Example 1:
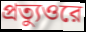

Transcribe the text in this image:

প্রত্যুওরে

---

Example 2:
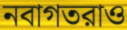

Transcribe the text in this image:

নবাগতরাও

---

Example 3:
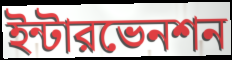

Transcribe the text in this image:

ইন্টারভেনশন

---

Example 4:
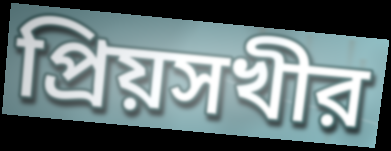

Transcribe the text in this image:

প্রিয়সখীর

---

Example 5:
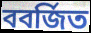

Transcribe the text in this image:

ববর্জিত